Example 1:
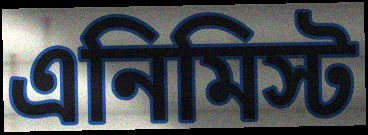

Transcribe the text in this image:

এনিমিস্ট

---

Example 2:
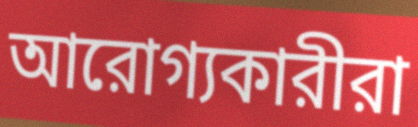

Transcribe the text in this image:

আরোগ্যকারীরা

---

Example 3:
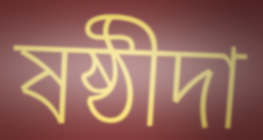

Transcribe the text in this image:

ষষ্ঠীদা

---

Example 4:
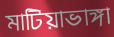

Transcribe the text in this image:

মাটিয়াভাঙ্গা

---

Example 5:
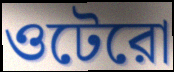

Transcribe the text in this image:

ওটেরো